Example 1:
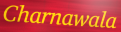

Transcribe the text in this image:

Charnawala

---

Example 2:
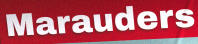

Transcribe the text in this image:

Marauders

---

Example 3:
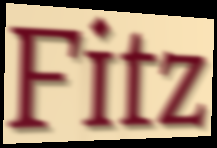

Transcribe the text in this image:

Fitz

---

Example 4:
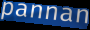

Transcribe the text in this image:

pannan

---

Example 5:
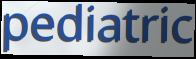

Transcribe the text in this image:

pediatric